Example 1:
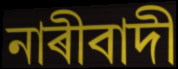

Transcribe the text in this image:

নাৰীবাদী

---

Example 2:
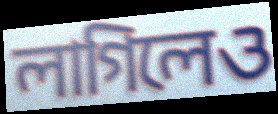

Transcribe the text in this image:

লাগিলেও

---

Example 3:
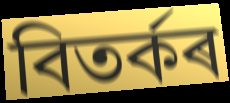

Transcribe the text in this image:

বিতৰ্কৰ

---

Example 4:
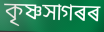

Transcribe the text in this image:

কৃষ্ণসাগৰৰ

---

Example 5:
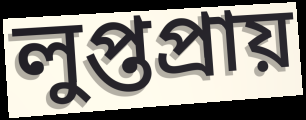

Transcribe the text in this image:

লুপ্তপ্ৰায়